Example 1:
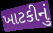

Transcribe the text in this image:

ખાટકીનું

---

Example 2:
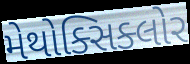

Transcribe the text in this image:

મેથોક્સિક્લોર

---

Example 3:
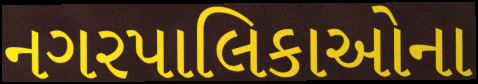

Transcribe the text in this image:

નગરપાલિકાઓના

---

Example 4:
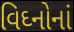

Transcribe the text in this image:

વિઘ્નોનાં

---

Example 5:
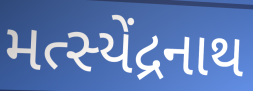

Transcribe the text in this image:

મત્સ્યેંદ્રનાથ